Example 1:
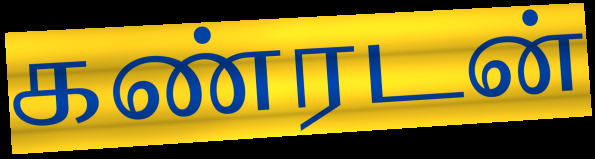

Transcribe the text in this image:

கண்ரடன்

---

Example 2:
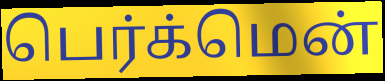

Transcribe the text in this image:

பெர்க்மென்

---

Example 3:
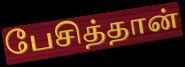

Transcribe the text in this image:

பேசித்தான்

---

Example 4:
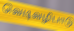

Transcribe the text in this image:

வெடிவழிபாடு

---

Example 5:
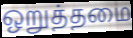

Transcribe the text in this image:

ஒறுத்தமை